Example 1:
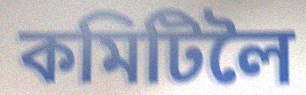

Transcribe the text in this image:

কমিটিলৈ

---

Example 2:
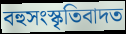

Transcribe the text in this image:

বহুসংস্কৃতিবাদত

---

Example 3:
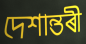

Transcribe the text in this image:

দেশান্তৰী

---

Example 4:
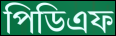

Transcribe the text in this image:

পিডিএফ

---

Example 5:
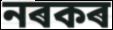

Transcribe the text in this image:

নৰকৰ